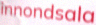
innondsala